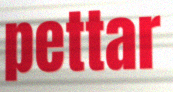
pettar